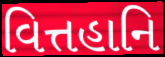
વિત્તહાનિ